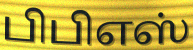
பிபிஎஸ்